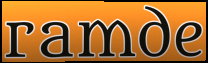
ramde